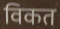
विकत